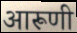
आरूणी